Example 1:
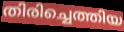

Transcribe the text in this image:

തിരിച്ചെത്തിയ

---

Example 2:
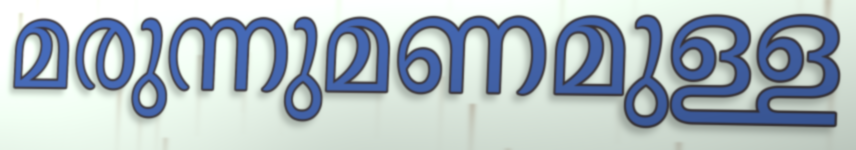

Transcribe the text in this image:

മരുന്നുമണമുള്ള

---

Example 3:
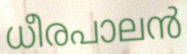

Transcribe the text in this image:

ധീരപാലൻ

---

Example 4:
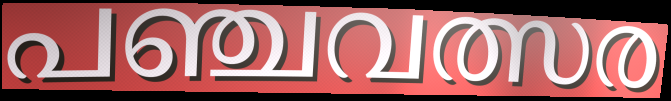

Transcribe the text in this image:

പഞ്ചവത്സര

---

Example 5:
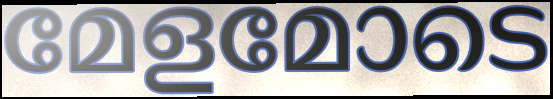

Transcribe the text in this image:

മേളമോടെ